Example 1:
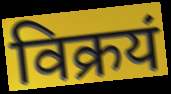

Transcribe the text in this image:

विक्रयं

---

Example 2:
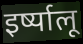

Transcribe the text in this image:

इर्ष्यालू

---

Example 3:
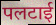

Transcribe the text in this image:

पलटाई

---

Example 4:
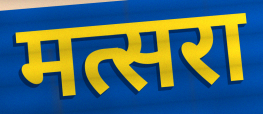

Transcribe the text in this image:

मत्सरा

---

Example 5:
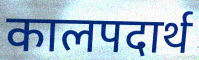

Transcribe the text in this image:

कालपदार्थ